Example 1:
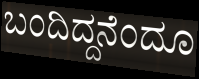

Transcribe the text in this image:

ಬಂದಿದ್ದನೆಂದೂ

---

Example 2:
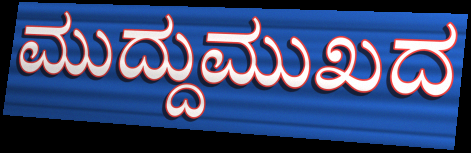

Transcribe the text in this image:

ಮುದ್ದುಮುಖದ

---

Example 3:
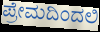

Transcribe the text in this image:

ಪ್ರೇಮದಿಂದಲಿ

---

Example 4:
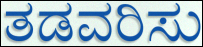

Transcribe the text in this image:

ತಡವರಿಸು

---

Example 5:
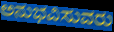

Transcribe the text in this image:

ಅನುಭವಿಸುವರು